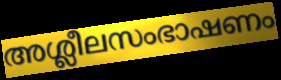
അശ്ലീലസംഭാഷണം